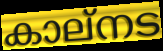
കാല്നട